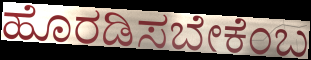
ಹೊರಡಿಸಬೇಕೆಂಬ